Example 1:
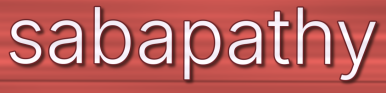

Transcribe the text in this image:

sabapathy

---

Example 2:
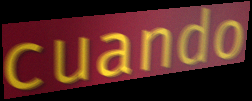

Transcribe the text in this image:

cuando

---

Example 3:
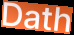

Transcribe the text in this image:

Dath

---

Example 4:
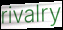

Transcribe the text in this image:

rivalry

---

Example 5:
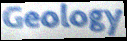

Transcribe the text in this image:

Geology